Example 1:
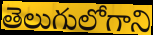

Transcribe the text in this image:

తెలుగులోగాని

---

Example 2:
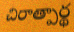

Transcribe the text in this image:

చిరాత్పార్థ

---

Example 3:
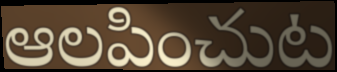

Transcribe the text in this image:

ఆలపించుట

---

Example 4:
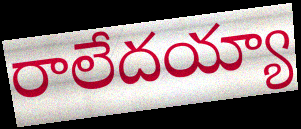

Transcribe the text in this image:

రాలేదయ్యా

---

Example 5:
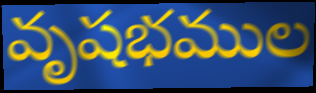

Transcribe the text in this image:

వృషభముల